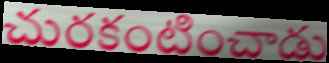
చురకంటించాడు